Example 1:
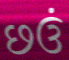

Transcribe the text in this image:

છઉં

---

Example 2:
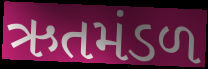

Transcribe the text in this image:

ઋતમંડળ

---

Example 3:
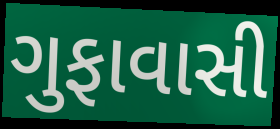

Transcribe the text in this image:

ગુફાવાસી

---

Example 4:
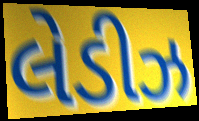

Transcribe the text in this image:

લેડીઝ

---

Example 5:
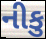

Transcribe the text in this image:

નીકુ